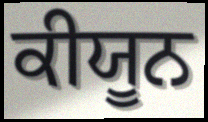
ਕੀਯੂਨ